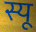
स्यू